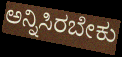
ಅನ್ನಿಸಿರಬೇಕು